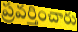
ప్రవర్తించారు